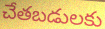
చేతబడులకు